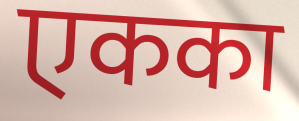
एकका